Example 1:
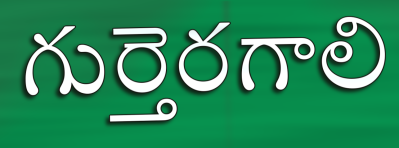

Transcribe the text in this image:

గుర్తెరగాలి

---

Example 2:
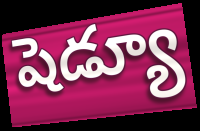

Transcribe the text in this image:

షెడ్యూ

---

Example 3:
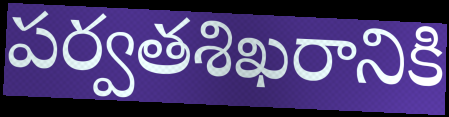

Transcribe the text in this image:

పర్వతశిఖరానికి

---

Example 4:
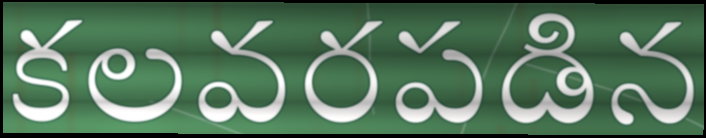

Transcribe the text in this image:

కలవరపడిన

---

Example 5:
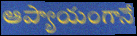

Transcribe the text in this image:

ఆప్యాయంగానే